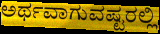
ಅರ್ಥವಾಗುವಷ್ಟರಲ್ಲಿ